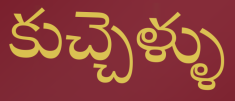
కుచ్చెళ్ళు